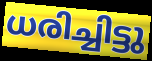
ധരിച്ചിട്ടു